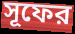
সূফের